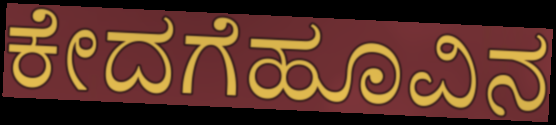
ಕೇದಗೆಹೂವಿನ